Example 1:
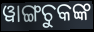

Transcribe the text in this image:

ୱାଙ୍ଗଚୁକଙ୍କ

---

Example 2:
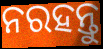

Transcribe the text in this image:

ନରହନ୍ତୁ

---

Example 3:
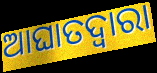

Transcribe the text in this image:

ଆଘାତଦ୍ୱାରା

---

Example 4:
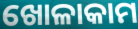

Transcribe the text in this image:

ଖୋଳାକାମ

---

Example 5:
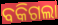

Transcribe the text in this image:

ବକିଗଲା